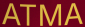
ATMA